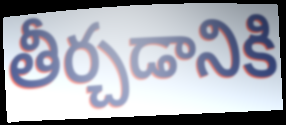
తీర్చడానికి